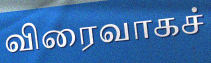
விரைவாகச்